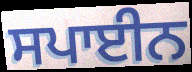
ਸਪਾਈਨ